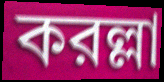
করল্লা